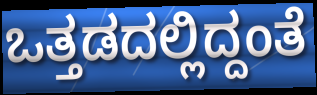
ಒತ್ತಡದಲ್ಲಿದ್ದಂತೆ